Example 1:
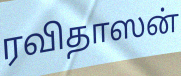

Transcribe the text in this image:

ரவிதாஸன்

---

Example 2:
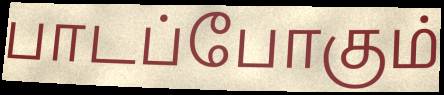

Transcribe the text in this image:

பாடப்போகும்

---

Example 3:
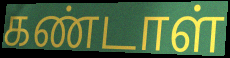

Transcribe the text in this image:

கண்டாள்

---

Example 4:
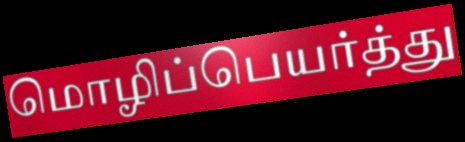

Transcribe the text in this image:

மொழிப்பெயர்த்து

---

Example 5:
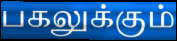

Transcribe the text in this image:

பகலுக்கும்